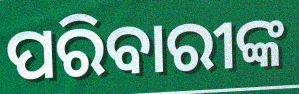
ପରିବାରୀଙ୍କ